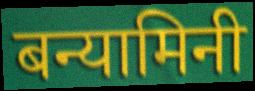
बन्यामिनी